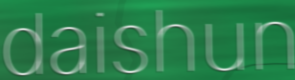
daishun